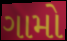
ગામો